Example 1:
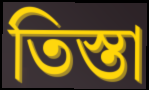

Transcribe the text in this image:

তিস্তা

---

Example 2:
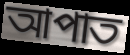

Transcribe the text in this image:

আপাত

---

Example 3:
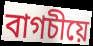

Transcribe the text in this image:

বাগচীয়ে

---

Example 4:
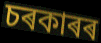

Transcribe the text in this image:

চৰকাৰৰ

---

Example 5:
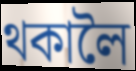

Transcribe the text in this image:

থকালৈ